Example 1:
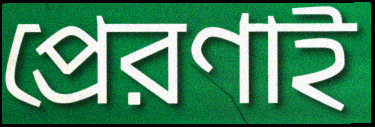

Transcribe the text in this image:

প্রেরণাই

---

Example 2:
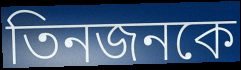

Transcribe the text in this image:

তিনজনকে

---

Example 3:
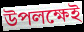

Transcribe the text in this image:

উপলক্ষেই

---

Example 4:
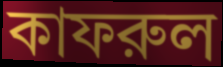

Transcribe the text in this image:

কাফরুল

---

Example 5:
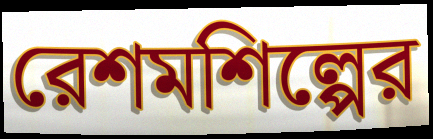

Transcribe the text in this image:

রেশমশিল্পের